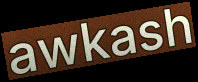
awkash